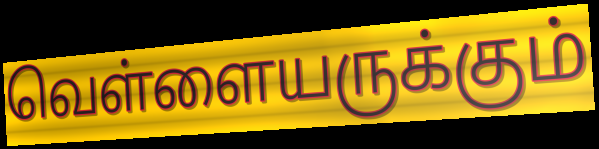
வெள்ளையருக்கும்